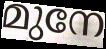
മുനേ